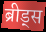
ब्रीड्स